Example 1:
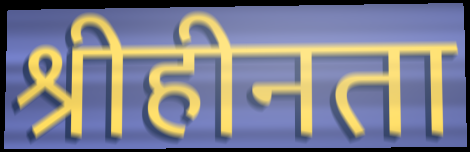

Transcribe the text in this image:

श्रीहीनता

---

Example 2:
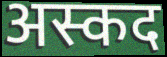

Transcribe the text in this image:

अस्कद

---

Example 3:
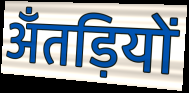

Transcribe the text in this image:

अँतड़ियों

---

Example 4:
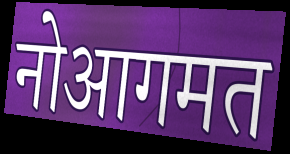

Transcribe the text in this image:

नोआगमत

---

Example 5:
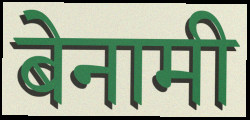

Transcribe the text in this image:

बेनामी